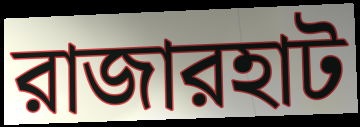
রাজারহাট